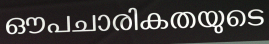
ഔപചാരികതയുടെ